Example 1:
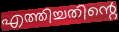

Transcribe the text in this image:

എത്തിച്ചതിന്റെ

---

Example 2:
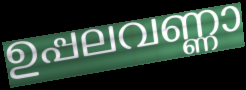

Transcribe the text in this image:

ഉപ്പലവണ്ണാ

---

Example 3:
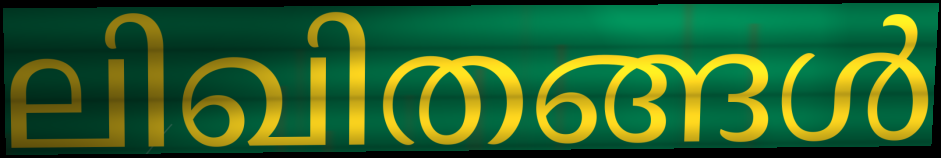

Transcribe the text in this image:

ലിഖിതങ്ങൾ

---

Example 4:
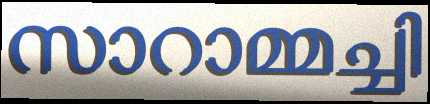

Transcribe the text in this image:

സാറാമ്മച്ചി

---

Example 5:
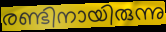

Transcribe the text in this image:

രണ്ടിനായിരുന്നു